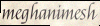
meghanimesh